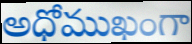
అధోముఖంగా